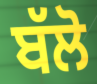
ਬੱਲੋ